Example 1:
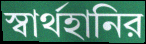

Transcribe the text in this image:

স্বার্থহানির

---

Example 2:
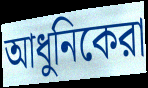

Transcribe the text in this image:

আধুনিকেরা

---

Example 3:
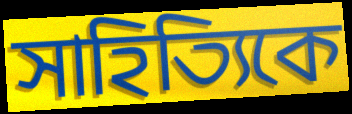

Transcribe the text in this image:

সাহিত্যিকে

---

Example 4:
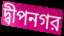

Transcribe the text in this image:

দ্বীপনগর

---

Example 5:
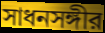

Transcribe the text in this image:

সাধনসঙ্গীর